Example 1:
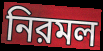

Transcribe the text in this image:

নিরমল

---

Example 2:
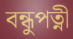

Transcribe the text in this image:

বন্ধুপত্নী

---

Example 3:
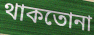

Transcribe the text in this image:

থাকতোনা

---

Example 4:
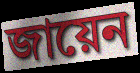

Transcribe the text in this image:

জায়েন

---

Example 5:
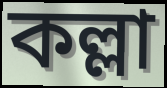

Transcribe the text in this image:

কল্লা